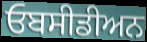
ਓਬਸੀਡੀਅਨ